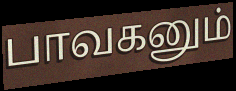
பாவகனும்